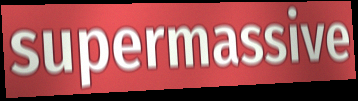
supermassive